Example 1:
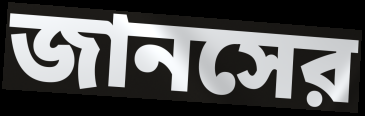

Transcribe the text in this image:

জানসের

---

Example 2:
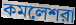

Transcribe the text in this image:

কমলেশরা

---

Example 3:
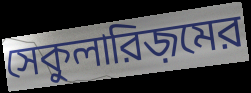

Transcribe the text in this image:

সেকুলারিজ়মের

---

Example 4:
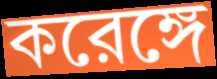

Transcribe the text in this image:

করেঙ্গে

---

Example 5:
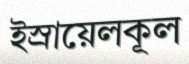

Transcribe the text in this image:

ইস্রায়েলকূল